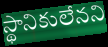
స్థానికులేనని